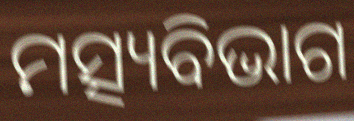
ମତ୍ସ୍ୟବିଭାଗ